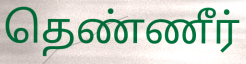
தெண்ணீர்